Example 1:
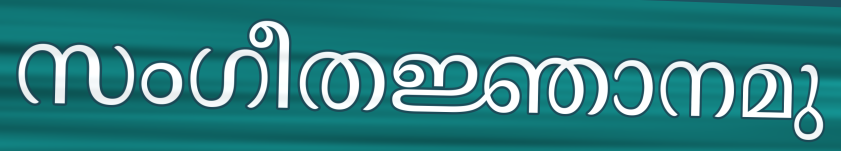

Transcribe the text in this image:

സംഗീതജ്ഞാനമു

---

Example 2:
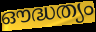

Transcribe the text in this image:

ഔദ്ധത്യം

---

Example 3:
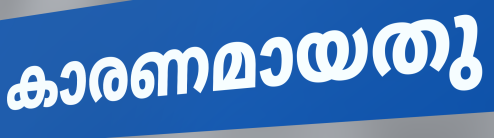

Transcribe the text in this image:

കാരണമായതു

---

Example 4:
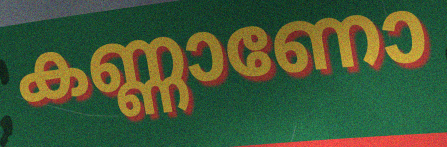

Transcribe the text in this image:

കണ്ണാണോ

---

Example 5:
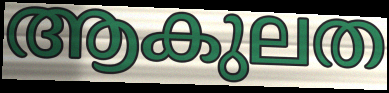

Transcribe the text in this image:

ആകുലത